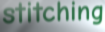
stitching